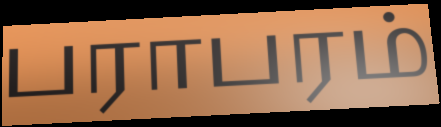
பராபரம்